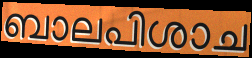
ബാലപിശാച